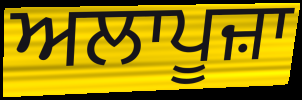
ਅਲਾਪੂਜ਼ਾ